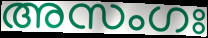
അസംഗഃ